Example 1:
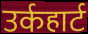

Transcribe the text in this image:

उर्कहार्ट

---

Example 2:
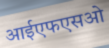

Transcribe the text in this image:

आईएफएसओ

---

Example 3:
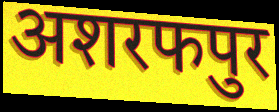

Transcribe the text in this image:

अशरफपुर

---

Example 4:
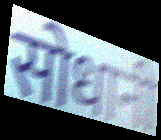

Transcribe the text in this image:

सोधानी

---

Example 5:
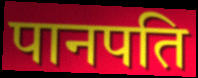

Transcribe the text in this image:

पानपति